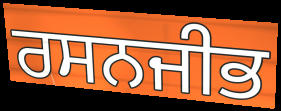
ਰਸਨਜੀਭ